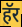
हॅर